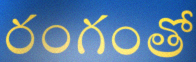
రంగంతో